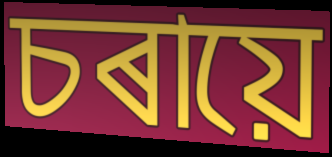
চৰায়ে